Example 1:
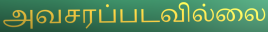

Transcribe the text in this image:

அவசரப்படவில்லை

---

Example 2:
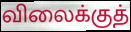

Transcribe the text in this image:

விலைக்குத்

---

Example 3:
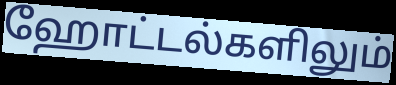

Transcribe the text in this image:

ஹோட்டல்களிலும்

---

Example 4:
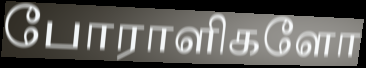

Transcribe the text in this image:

போராளிகளோ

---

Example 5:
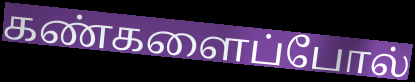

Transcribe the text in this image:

கண்களைப்போல்